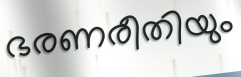
ഭരണരീതിയും